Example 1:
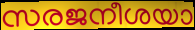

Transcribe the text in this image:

സരജനീശയാ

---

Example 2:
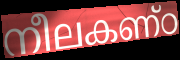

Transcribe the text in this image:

നീലകണ്ഠ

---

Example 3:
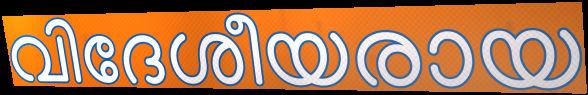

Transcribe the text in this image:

വിദേശീയരായ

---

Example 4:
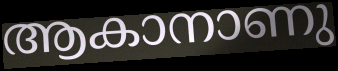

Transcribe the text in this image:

ആകാനാണു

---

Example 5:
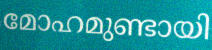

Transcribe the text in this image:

മോഹമുണ്ടായി